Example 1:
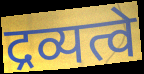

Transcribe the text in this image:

द्रव्यत्वे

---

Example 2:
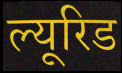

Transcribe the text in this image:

ल्यूरिड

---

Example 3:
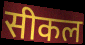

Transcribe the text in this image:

सीकल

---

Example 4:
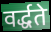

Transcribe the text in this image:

वर्द्धते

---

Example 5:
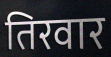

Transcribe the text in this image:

तिरवार